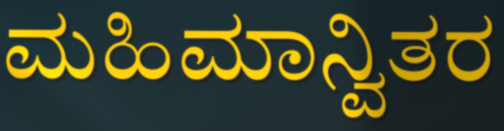
ಮಹಿಮಾನ್ವಿತರ